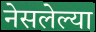
नेसलेल्या